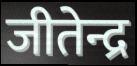
जीतेन्द्र